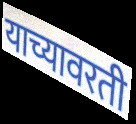
याच्यावरती